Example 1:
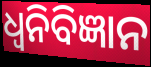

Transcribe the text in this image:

ଧ୍ୱନିବିଜ୍ଞାନ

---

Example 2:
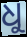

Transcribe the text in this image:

ଧୁ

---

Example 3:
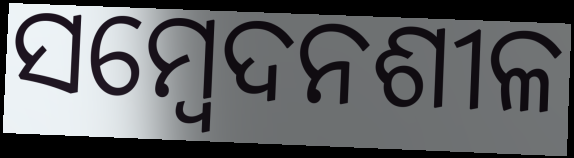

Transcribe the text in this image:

ସମ୍ବେଦନଶୀଳ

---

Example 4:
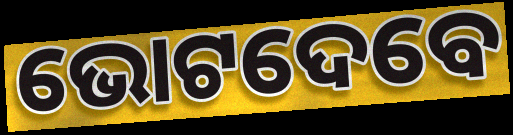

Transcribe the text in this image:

ଭୋଟଦେବେ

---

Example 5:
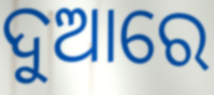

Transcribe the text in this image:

ଦୁଆରେ